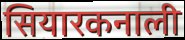
सियारकनाली